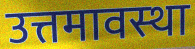
उत्तमावस्था